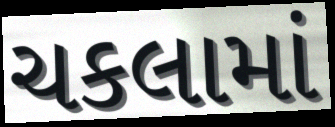
ચકલામાં